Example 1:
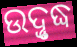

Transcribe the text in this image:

ଉଦ୍ବୃଦ୍ଧ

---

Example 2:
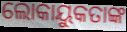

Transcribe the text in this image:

ଲୋକାୟୁକତାଙ୍କ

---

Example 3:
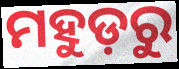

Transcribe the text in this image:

ମହୁଡ଼ରୁ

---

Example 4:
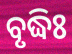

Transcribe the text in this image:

ବୃଦ୍ଧିଃ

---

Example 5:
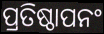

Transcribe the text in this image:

ପ୍ରତିଷ୍ଠାପନଂ